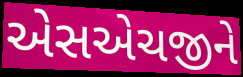
એસએચજીને